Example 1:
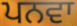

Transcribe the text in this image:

ਪਨਵਾ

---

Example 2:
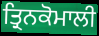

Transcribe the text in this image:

ਤ੍ਰਿਨਕੋਮਾਲੀ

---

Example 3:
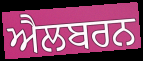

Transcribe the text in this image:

ਐਲਬਰਨ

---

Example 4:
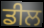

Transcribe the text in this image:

ਡੀਲ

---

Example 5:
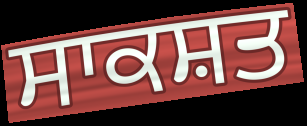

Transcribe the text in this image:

ਸਾਕਸ਼ਤ